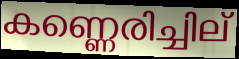
കണ്ണെരിച്ചില്